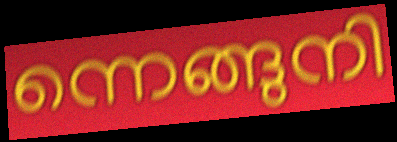
ന്നെങ്ങുനി